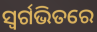
ସ୍ଵର୍ଗଭିତରେ